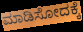
ಮಾಡಿಸೋದಕ್ಕೆ